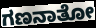
ಗಣನಾತೋ